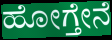
ಹೋಗ್ತೇನೆ